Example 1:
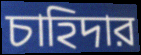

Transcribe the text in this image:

চাহিদার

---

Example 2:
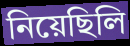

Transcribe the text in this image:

নিয়েছিলি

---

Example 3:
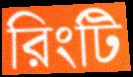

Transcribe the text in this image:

রিংটি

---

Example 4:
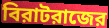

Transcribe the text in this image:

বিরাটরাজের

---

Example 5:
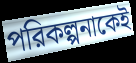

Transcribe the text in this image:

পরিকল্পনাকেই